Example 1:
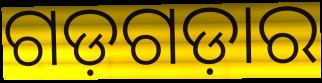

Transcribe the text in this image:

ଗଡ଼ଗଡ଼ାର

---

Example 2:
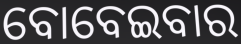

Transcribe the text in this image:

ବୋବେଇବାର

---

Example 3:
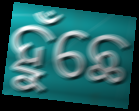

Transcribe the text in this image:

ହୁଁଛେ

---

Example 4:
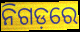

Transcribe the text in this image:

ନିଗଡ଼ରେ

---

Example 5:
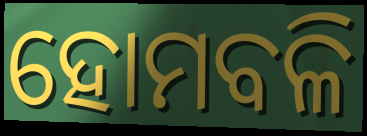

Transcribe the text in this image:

ହୋମବଳି